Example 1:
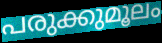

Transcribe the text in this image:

പരുക്കുമൂലം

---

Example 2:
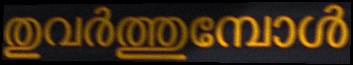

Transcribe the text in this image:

തുവർത്തുമ്പോൾ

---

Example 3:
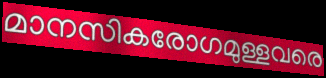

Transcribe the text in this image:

മാനസികരോഗമുള്ളവരെ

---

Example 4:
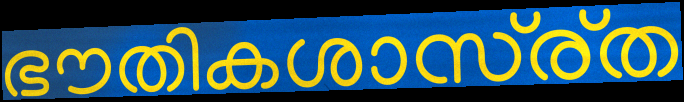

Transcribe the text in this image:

ഭൗതികശാസ്ര്ത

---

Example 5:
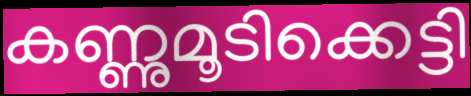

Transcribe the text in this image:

കണ്ണുമൂടിക്കെട്ടി